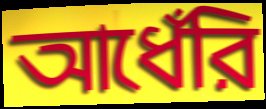
আধেঁরি